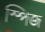
স্পিজ